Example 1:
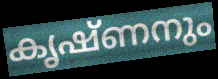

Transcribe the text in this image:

കൃഷ്ണനും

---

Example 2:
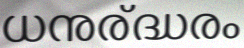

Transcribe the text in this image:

ധനുര്ദ്ധരം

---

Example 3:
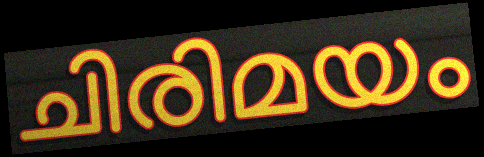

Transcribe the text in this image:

ചിരിമയം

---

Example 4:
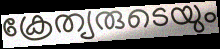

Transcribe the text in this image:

ക്രേത്യരുടെയും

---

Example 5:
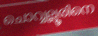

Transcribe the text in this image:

ചൊവ്വല്ലൂരിനെ